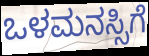
ಒಳಮನಸ್ಸಿಗೆ